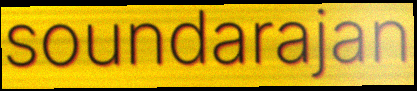
soundarajan